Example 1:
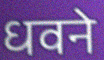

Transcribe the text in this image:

धवने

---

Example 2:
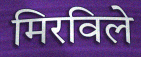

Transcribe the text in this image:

मिरविले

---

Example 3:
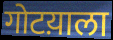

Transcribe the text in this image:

गोटय़ाला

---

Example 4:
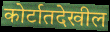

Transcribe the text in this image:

कोर्टातदेखील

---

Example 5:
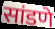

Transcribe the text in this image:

सांडणे